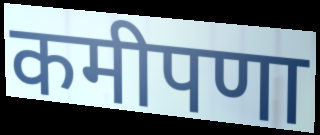
कमीपणा